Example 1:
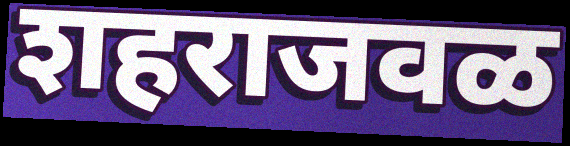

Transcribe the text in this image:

शहराजवळ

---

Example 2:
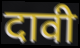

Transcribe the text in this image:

दावी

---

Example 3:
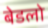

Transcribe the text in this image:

बेडलो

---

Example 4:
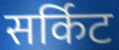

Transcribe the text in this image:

सर्किट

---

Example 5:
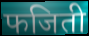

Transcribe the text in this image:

फजिती